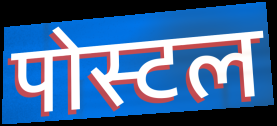
पोस्टल